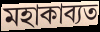
মহাকাব্যত